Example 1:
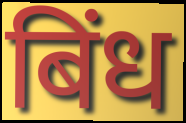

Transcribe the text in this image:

बिंध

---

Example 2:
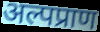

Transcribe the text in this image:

अल्पप्राण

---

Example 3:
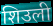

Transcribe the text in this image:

शिउली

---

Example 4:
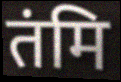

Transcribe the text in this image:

तंमि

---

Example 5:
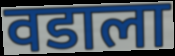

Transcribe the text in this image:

वडाला